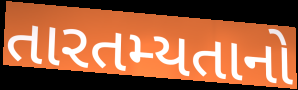
તારતમ્યતાનો